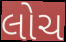
લોચ